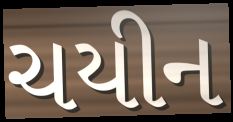
ચયીન